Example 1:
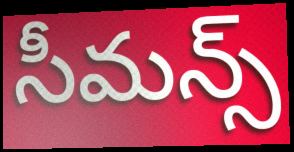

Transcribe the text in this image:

సీమన్స్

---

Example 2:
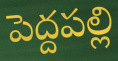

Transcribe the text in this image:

పెద్దపల్లి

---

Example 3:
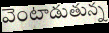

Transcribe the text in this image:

వెంటాడుతున్న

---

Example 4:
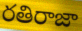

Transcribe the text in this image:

రతిరాజా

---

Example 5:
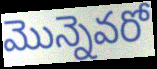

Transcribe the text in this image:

మొన్నెవరో